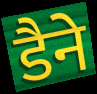
डैने